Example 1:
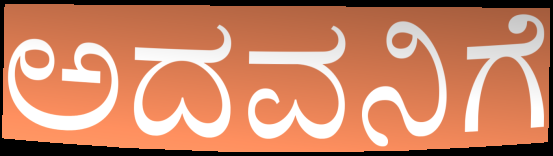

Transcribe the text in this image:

ಅದವನಿಗೆ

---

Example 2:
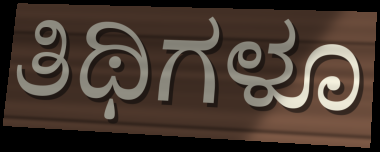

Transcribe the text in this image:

ತಿಥಿಗಳೂ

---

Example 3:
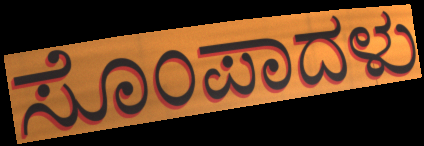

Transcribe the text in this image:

ಸೊಂಪಾದಳು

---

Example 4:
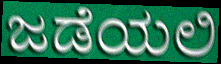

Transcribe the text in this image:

ಜಡೆಯಲಿ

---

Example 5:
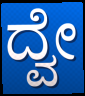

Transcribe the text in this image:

ದ್ವೇ